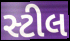
સ્ટીલ